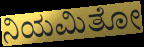
ನಿಯಮಿತೋ